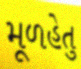
મૂળહેતુ